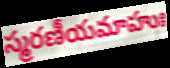
స్మరణీయమాహుః